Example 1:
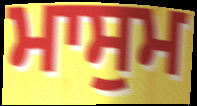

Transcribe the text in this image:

ਮਾਸੁਮ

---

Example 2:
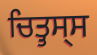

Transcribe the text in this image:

ਚਿਤ੍ਤਸ੍ਸ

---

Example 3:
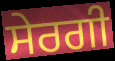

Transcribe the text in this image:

ਸੇਰਗੀ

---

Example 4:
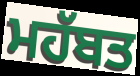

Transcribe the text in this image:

ਮਹੱਬਤ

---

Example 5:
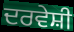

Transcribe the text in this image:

ਦਰਵੇਸ਼ੀ